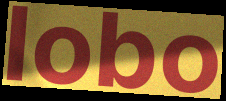
lobo